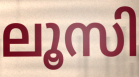
ലൂസി